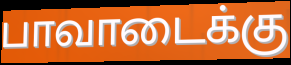
பாவாடைக்கு